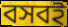
বসবই